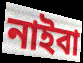
নাইবা